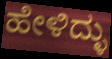
ಹೇಳಿದ್ಳು